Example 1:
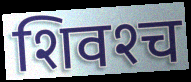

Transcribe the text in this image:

शिवश्च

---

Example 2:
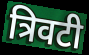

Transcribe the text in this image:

त्रिवटी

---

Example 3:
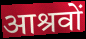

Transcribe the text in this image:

आश्रवों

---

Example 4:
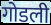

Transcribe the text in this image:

गोडली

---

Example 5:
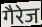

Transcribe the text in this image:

गैरेज